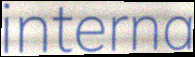
interna